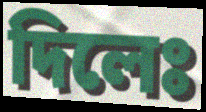
দিলেঃ